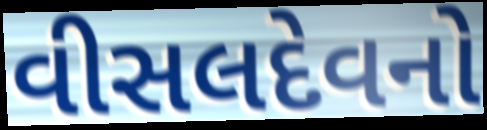
વીસલદેવનો